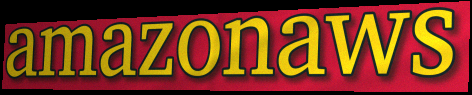
amazonaws